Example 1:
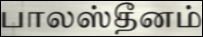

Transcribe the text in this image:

பாலஸ்தீனம்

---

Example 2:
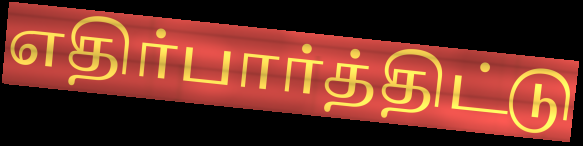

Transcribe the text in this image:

எதிர்பார்த்திட்டு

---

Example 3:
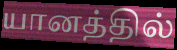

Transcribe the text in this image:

யானத்தில்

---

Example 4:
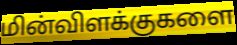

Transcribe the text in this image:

மின்விளக்குகளை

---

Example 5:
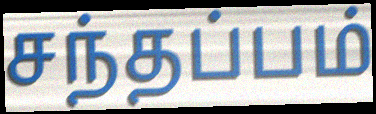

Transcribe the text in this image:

சந்தப்பம்